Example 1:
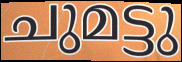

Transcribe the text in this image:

ചുമട്ടു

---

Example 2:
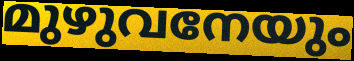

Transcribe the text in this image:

മുഴുവനേയും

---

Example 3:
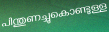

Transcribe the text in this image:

പിന്തുണച്ചുകൊണ്ടുള്ള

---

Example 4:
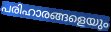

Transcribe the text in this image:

പരിഹാരങ്ങളെയും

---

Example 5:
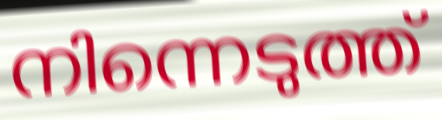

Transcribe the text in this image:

നിന്നെടുത്ത്